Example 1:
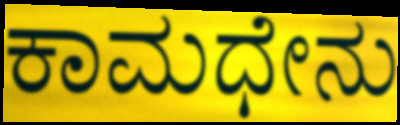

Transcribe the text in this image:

ಕಾಮಧೇನು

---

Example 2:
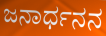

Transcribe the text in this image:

ಜನಾರ್ಧನನ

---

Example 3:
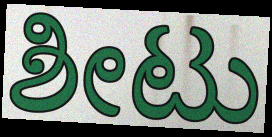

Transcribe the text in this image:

ಶೀಟು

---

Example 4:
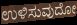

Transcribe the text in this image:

ಉಳಿಸುವುದೋ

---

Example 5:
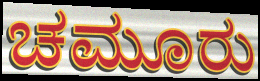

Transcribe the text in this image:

ಚಮೂರು